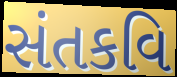
સંતકવિ